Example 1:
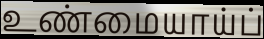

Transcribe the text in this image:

உண்மையாய்ப்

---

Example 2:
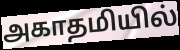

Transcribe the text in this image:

அகாதமியில்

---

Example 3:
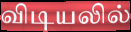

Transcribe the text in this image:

விடியலில்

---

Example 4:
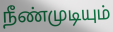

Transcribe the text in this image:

நீண்முடியும்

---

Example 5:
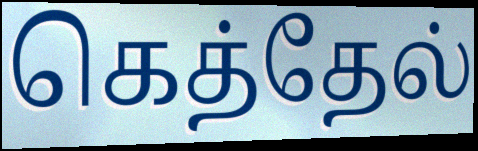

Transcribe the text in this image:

கெத்தேல்